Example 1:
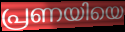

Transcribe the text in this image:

പ്രണയിയെ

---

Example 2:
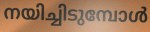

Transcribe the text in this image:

നയിച്ചിടുമ്പോൾ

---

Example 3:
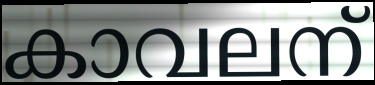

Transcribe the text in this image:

കാവലന്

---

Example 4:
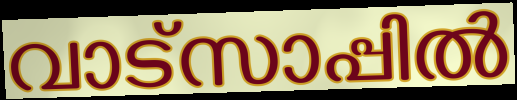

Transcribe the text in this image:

വാട്സാപ്പിൽ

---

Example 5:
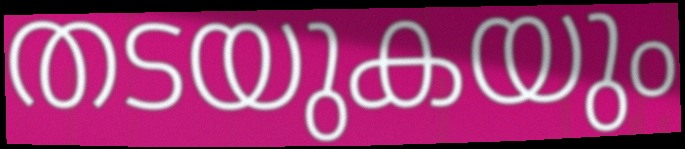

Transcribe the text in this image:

തടയുകയും